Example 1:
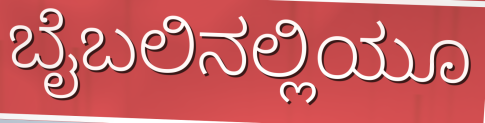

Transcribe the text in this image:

ಬೈಬಲಿನಲ್ಲಿಯೂ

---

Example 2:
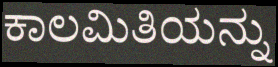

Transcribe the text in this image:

ಕಾಲಮಿತಿಯನ್ನು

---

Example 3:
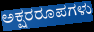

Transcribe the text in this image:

ಅಕ್ಷರರೂಪಗಳು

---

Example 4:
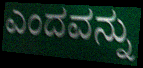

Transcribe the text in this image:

ಎಂದವನ್ನು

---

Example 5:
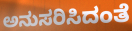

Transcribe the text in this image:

ಅನುಸರಿಸಿದಂತೆ